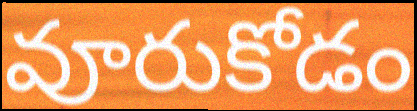
వూరుకోడం